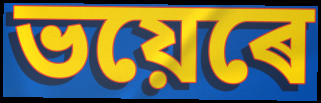
ভয়েৰে